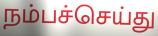
நம்பச்செய்து